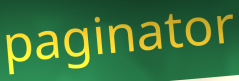
paginator